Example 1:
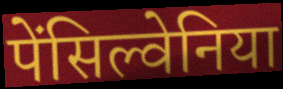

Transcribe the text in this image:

पेंसिल्वेनिया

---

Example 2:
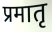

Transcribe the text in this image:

प्रमातृ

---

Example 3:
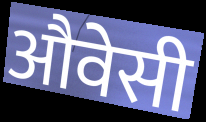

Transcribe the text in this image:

औवेसी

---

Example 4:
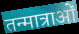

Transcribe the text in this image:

तन्मात्राओं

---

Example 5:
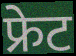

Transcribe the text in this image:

फ्रेट